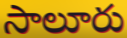
సాలూరు